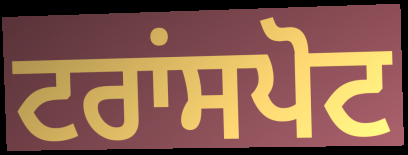
ਟਰਾਂਸਪੋਟ